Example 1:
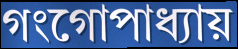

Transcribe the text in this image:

গংগোপাধ্যায়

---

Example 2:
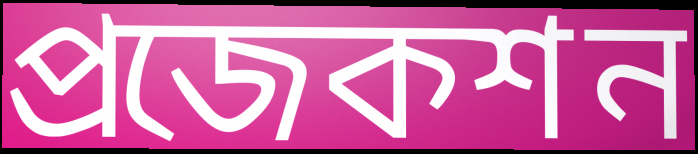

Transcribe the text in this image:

প্রজেকশন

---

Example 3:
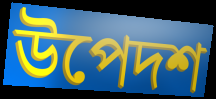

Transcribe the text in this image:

উপেদশ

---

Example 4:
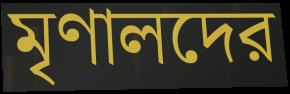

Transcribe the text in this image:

মৃণালদের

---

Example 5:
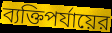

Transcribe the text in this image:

ব্যক্তিপর্যায়ের